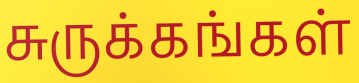
சுருக்கங்கள்